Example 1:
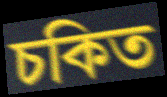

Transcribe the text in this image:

চকিত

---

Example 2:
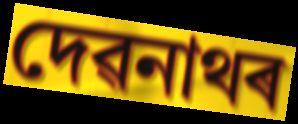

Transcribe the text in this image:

দেৱনাথৰ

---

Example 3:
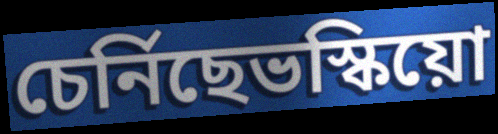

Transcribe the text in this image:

চেৰ্নিছেভস্কিয়ো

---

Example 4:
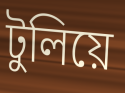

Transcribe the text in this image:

টুলিয়ে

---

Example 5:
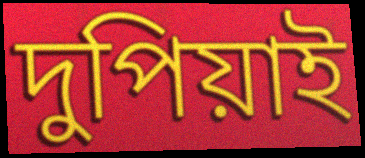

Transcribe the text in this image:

দুপিয়াই